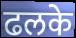
ढलके